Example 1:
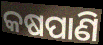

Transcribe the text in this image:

କଷପାଣି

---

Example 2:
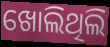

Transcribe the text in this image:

ଖୋଲିଥିଲି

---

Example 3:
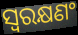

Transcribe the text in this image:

ସ୍ୱରକ୍ଷଣଂ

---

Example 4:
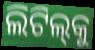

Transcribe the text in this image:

ଲିଟିଲ୍‌କୁ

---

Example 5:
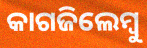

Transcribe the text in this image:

କାଗଜିଲେମ୍ବୁ